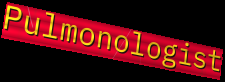
Pulmonologist